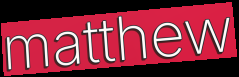
matthew